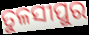
ତୁଳସୀପୁର